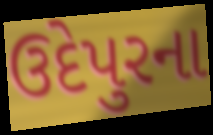
ઉદેપુરના